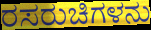
ರಸರುಚಿಗಳನು